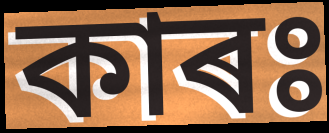
কাৰঃ